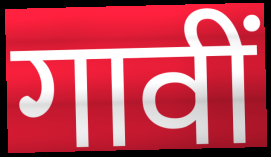
गावीं